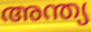
അന്ത്യ